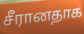
சீரானதாக